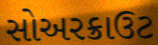
સોઅરક્રાઉટ